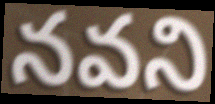
నవని